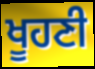
ਖੂਹਣੀ